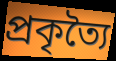
প্রকৃত্যৈ